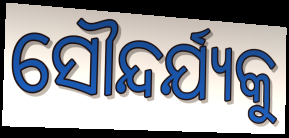
ସୌନ୍ଦର୍ଯ୍ଯକୁ